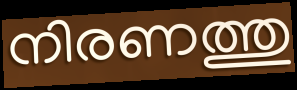
നിരണത്തു